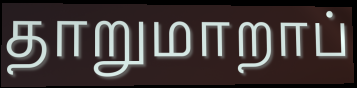
தாறுமாறாப்